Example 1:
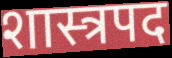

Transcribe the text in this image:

शास्त्रपद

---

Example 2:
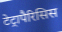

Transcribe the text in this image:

टेट्रापैरिसिस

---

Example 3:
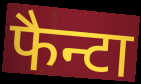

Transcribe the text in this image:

फैन्टा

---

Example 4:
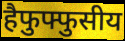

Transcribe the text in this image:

हैफुफ्फुसीय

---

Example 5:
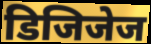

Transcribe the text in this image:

डिजिजेज